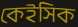
কেইসিক